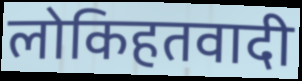
लोकिहतवादी